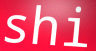
shi